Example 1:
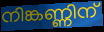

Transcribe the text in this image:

നിങ്കണ്ണിന്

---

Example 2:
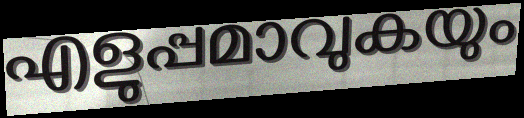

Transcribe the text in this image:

എളുപ്പമാവുകയും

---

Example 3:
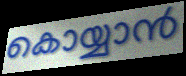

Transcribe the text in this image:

കൊയ്യാൻ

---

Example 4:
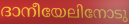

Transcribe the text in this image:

ദാനീയേലിനോടു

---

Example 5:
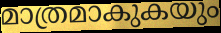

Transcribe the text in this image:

മാത്രമാകുകയും